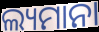
ଲ୍ୟମାନା